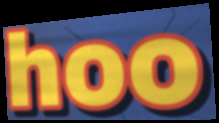
hoo